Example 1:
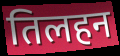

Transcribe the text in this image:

तिलहन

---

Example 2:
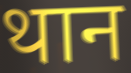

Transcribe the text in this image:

थान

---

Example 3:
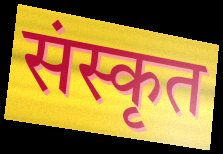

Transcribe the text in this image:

संस्‍कृत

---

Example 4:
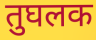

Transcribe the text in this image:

तुघलक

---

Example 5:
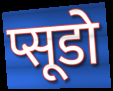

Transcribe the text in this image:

प्सूडो